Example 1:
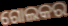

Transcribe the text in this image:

ଗୋଲକର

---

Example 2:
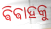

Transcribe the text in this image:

ଵିଵାହକୁ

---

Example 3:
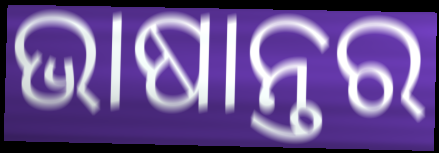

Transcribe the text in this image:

ଭାଷାନ୍ତର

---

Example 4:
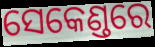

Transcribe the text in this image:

ସେକେଣ୍ଡରେ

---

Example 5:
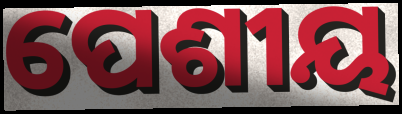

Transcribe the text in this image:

ପେଶୀୟ